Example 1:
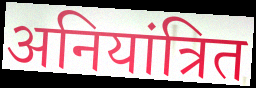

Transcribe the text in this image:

अनियांत्रित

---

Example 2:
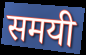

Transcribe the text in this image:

समयी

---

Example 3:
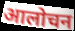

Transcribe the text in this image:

आलोचन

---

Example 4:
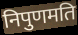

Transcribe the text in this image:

निपुणमति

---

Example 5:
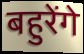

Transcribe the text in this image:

बहुरेंगे